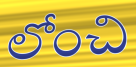
లోంచి